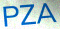
PZA